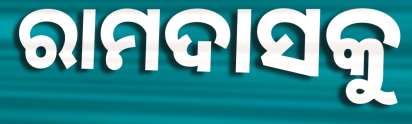
ରାମଦାସକୁ